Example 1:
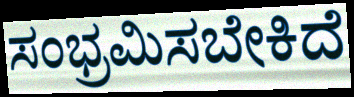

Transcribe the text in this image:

ಸಂಭ್ರಮಿಸಬೇಕಿದೆ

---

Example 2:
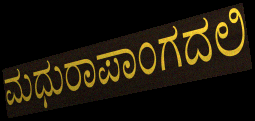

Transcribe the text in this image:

ಮಧುರಾಪಾಂಗದಲಿ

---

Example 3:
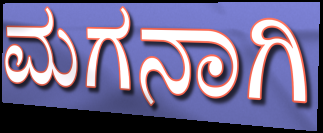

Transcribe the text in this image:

ಮಗನಾಗಿ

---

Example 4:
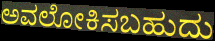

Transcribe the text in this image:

ಅವಲೋಕಿಸಬಹುದು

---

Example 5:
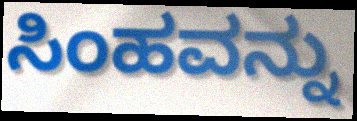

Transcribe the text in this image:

ಸಿಂಹವನ್ನು